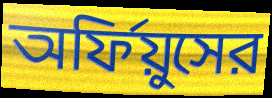
অর্ফিয়ুসের